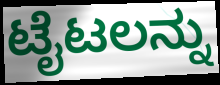
ಟೈಟಲನ್ನು